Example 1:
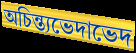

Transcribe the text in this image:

অচিন্ত্যভেদাভেদ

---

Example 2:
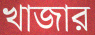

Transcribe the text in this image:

খাজার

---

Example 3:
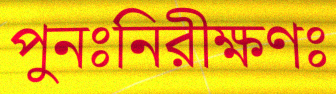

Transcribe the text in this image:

পুনঃনিরীক্ষণঃ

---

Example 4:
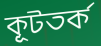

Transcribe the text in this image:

কূটতর্ক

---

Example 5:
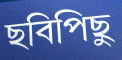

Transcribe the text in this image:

ছবিপিছু